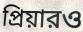
প্রিয়ারও